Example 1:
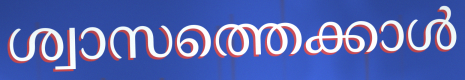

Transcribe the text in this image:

ശ്വാസത്തെക്കാൾ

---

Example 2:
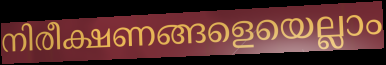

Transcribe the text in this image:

നിരീക്ഷണങ്ങളെയെല്ലാം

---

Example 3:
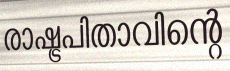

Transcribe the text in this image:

രാഷ്ട്രപിതാവിന്റെ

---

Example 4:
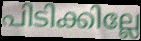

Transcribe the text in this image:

പിടിക്കില്ലേ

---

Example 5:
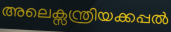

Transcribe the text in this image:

അലെക്സന്ത്രിയക്കപ്പൽ